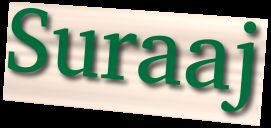
Suraaj